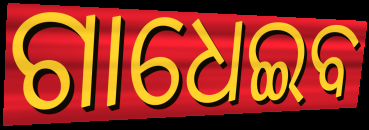
ଗାଧେଇବ